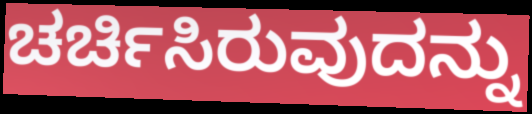
ಚರ್ಚಿಸಿರುವುದನ್ನು